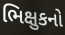
ભિક્ષુકનો